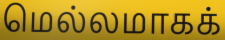
மெல்லமாகக்